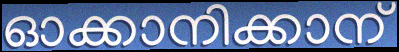
ഓക്കാനിക്കാന്